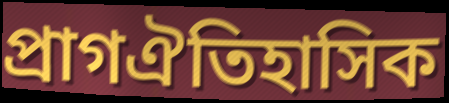
প্ৰাগঐতিহাসিক